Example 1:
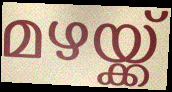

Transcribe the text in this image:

മഴയ്ക്ക്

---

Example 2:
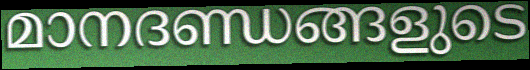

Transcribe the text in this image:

മാനദണ്ഡങ്ങളുടെ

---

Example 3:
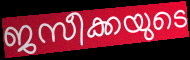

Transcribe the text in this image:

ജസീക്കയുടെ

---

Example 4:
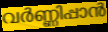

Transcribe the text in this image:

വർണ്ണിപ്പാൻ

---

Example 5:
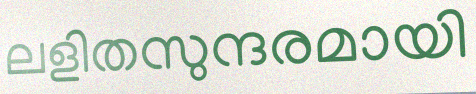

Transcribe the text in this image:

ലളിതസുന്ദരമായി